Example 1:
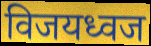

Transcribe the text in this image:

विजयध्वज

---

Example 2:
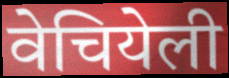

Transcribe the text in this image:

वेचियेली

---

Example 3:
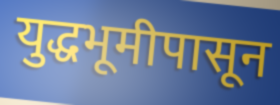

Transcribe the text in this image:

युद्धभूमीपासून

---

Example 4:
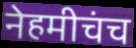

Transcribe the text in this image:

नेहमीचंच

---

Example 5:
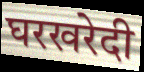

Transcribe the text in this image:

घरखरेदी